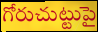
గోరుచుట్టుపై